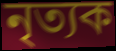
নৃত্যক